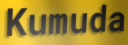
Kumuda